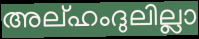
അല്ഹംദുലില്ലാ